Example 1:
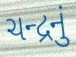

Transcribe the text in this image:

ચન્દ્રનું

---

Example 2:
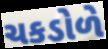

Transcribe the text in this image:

ચકડોળે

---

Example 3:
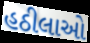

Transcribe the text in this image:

હઠીલાઓ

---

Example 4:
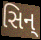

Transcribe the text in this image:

સિન્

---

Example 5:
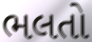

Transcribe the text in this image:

ભલતો